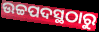
ଉଚ୍ଚପଦସ୍ଥଠାରୁ